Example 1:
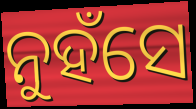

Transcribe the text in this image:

ନୁହଁସେ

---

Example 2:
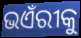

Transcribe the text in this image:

ଭଏଁରୀକୁ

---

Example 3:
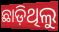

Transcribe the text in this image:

ଛାଡ଼ିଥିଲୁ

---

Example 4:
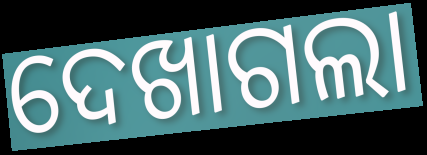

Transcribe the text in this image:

ଦେଖାଗଲା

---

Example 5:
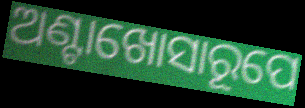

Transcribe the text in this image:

ଅଣ୍ଟାଖୋସାରୂପେ